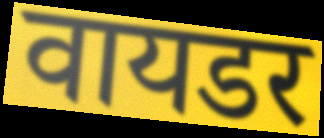
वायडर